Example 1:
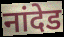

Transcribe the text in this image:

नांदेड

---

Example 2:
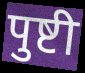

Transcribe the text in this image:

पुष्टी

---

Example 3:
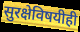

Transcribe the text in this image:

सुरक्षेविषयीही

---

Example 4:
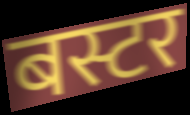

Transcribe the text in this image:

बस्टर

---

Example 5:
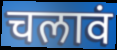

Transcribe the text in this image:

चलावं